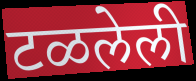
टळलेली